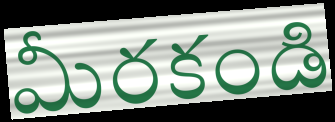
మీరకండి